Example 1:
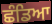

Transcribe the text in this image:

ਛੰਡਿਆ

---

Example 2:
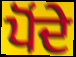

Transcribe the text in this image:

ਪੋਂਦੇ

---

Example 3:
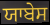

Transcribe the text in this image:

ਯਾਬੇਸ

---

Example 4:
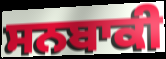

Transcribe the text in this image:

ਸਨਬਾਕੀ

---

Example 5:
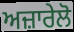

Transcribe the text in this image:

ਅਜ਼ਾਰੇਲੋ